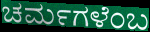
ಚರ್ಮಗಳೆಂಬ